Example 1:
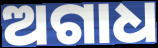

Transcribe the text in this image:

ଅଗାଧ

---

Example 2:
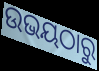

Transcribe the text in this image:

ଉଭୟଠାରୁ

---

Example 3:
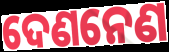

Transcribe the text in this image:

ଦେଣନେଣ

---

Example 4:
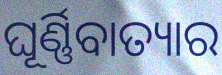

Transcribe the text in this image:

ଘୂର୍ଣ୍ଣିବାତ୍ୟାର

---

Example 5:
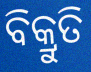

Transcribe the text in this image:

ବିକ୍ରୁତି